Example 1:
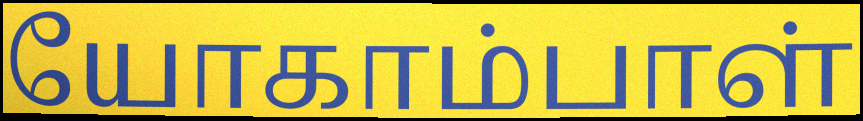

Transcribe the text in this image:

யோகாம்பாள்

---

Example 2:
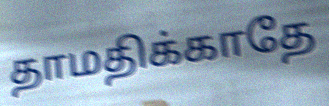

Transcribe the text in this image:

தாமதிக்காதே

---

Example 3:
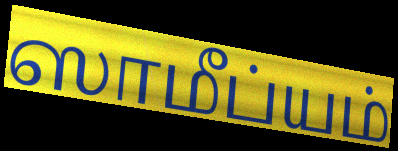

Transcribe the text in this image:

ஸாமீப்யம்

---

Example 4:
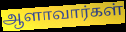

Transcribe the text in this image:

ஆளாவார்கள்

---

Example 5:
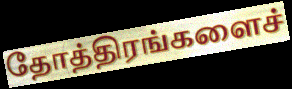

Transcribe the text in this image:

தோத்திரங்களைச்